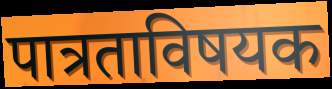
पात्रताविषयक